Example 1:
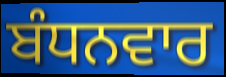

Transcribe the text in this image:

ਬੰਧਨਵਾਰ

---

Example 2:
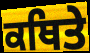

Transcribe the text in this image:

ਕਥਿਤੇ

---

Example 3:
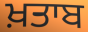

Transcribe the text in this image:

ਖ਼ਤਾਬ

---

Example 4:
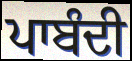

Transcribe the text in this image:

ਪਾਬੰਦੀ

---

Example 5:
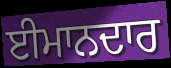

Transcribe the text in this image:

ਈਮਾਨਦਾਰ